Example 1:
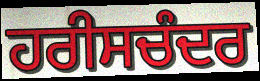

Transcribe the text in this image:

ਹਰੀਸਚੰਦਰ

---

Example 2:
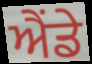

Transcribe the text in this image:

ਐਂਡੇ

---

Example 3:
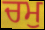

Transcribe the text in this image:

ਚਮੁ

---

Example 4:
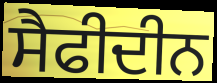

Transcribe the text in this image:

ਸੈਫੀਦੀਨ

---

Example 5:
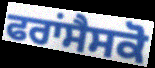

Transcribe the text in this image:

ਫਰਾਂਸੈਸਕੋ